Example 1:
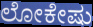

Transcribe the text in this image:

ಲೋಕೇಷು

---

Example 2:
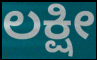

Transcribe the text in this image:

ಲಕ್ಷೀ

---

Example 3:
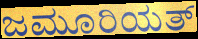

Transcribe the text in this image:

ಜಮೂರಿಯತ್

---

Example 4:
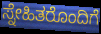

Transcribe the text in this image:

ಸ್ನೇಹಿತರೊಂದಿಗೆ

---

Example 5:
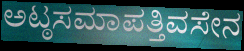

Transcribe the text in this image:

ಅಟ್ಠಸಮಾಪತ್ತಿವಸೇನ